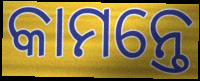
କାମନ୍ତେ